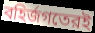
বহির্জগতেরই